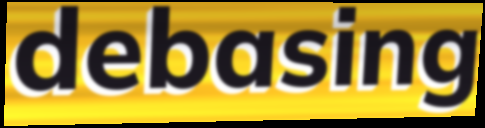
debasing